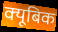
क्यूबिक